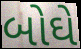
બોઘે